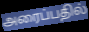
அரைப்பதில்